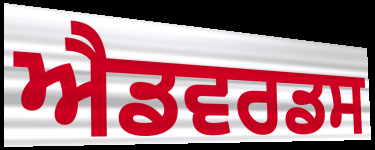
ਐਡਵਰਡਸ